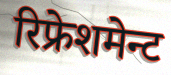
रिफ्रेशमेन्ट